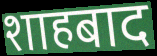
शाहबाद